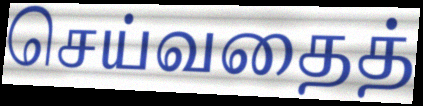
செய்வதைத்